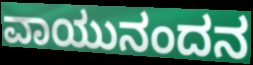
ವಾಯುನಂದನ